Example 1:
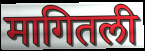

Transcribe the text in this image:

मागितली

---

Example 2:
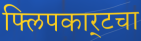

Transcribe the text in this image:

फ्लिपकार्टचा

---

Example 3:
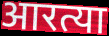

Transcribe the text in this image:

आरत्या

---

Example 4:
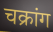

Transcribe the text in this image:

चक्रांग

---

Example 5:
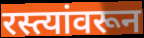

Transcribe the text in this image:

रस्त्यांवरून